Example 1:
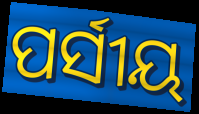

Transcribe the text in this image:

ପର୍ସୀୟ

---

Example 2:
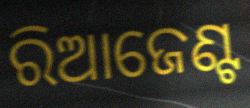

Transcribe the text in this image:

ରିଆଜେଣ୍ଟ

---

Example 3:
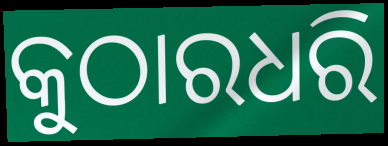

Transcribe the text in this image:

କୁଠାରଧରି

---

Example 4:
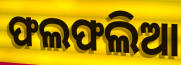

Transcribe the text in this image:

ଫଲଫଲିଆ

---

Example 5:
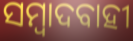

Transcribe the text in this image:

ସମ୍ବାଦବାହୀ